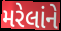
મરેલાંને